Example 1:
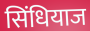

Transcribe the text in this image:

सिंधियाज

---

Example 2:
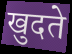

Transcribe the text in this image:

खुदते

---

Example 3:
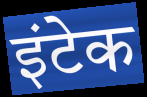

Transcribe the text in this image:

इंटेक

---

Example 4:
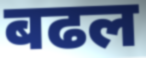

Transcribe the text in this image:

बढल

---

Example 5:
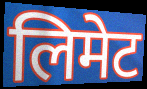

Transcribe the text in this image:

लिमेट